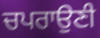
ਚਪਰਾਉਣੀ